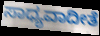
ಸಾಧ್ಯವಾದೀತೆ